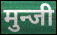
मुन्जी